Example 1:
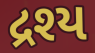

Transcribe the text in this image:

દ્રશ્ય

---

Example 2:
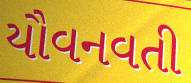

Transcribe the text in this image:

યૌવનવતી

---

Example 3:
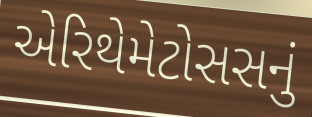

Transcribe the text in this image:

એરિથેમેટોસસનું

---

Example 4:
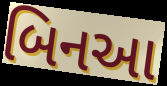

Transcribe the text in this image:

બિનઆ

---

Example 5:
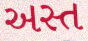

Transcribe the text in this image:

અસ્ત